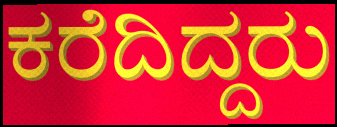
ಕರೆದಿದ್ದರು